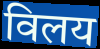
विलय